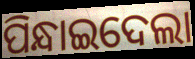
ପିନ୍ଧାଇଦେଲା